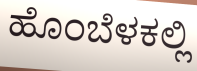
ಹೊಂಬೆಳಕಲ್ಲಿ